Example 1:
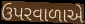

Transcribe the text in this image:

ઉપરવાળાએ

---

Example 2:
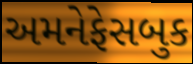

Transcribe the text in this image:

અમનેફેસબુક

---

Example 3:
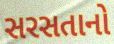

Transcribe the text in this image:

સરસતાનો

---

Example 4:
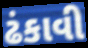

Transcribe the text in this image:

ઢંકાવી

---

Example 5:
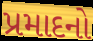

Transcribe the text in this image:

પ્રમાદનો